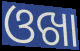
ଓଖା